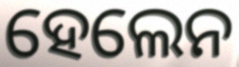
ହେଲେନ